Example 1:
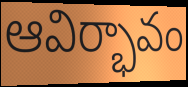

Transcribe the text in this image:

ఆవిర్భావం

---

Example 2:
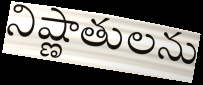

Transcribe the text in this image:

నిష్ణాతులను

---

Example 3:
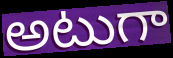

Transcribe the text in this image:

అటుగా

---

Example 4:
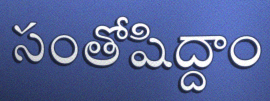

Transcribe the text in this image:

సంతోషిద్దాం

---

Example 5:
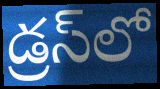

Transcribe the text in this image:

డ్రస్‌లో